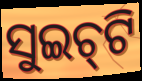
ସୁଇଚ୍‌ଟି